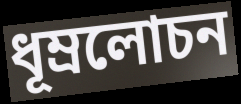
ধূম্রলোচন